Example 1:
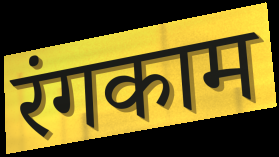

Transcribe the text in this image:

रंगकाम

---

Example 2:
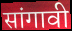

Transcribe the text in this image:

सांगावी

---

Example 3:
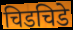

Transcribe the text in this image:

चिडचिडे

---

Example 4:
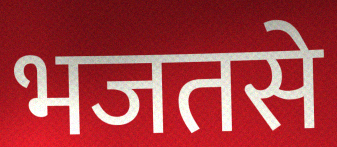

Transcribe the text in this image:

भजतसे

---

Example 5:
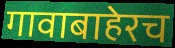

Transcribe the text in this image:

गावाबाहेरच